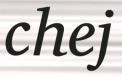
chej